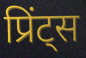
प्रिंट्स